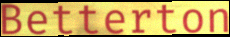
Betterton